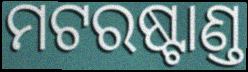
ମଟରଷ୍ଟାଣ୍ଡ